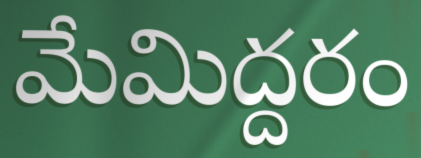
మేమిద్దరం